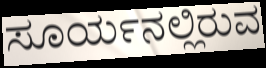
ಸೂರ್ಯನಲ್ಲಿರುವ